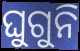
ଘୁଗୁନି